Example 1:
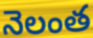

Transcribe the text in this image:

నెలంత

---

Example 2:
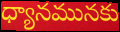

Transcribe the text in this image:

ధ్యానమునకు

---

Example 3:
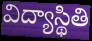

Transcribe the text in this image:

విద్యాస్థితి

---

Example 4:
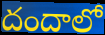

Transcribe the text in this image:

దందాలో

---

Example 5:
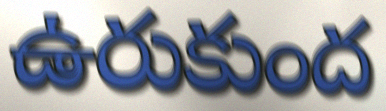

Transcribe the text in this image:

ఉరుకుంద